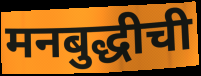
मनबुद्धीची